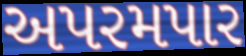
અપરમપાર